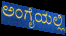
ಅಂಗೈಯಲ್ಲಿ